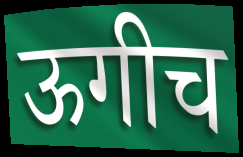
ऊगीच